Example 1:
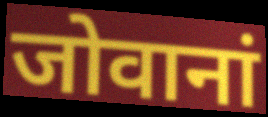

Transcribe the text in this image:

जोवानां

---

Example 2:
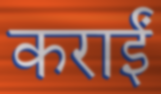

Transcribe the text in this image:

कराईं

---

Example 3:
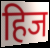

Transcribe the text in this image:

हिज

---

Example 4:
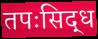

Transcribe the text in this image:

तपःसिद्ध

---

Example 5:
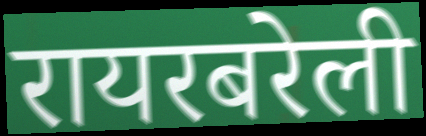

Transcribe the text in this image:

रायरबरेली